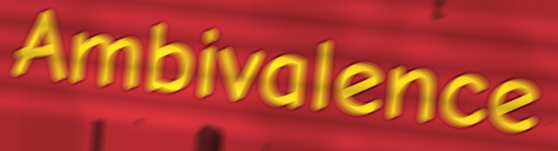
Ambivalence